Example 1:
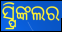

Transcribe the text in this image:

ସ୍ପ୍ରିଙ୍କଲର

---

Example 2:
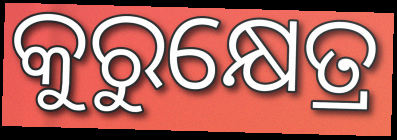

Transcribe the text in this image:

କୁରୁକ୍ଷେତ୍ର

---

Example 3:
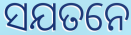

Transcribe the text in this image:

ସଯତନେ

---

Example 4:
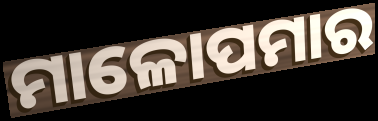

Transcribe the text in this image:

ମାଳୋପମାର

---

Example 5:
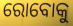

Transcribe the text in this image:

ରୋବୋକୁ